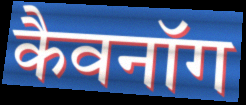
कैवनॉग